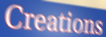
Creations